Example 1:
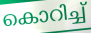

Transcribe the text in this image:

കൊറിച്ച്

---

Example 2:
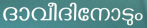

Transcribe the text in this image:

ദാവീദിനോടും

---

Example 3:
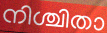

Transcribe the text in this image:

നിശ്ചിതാ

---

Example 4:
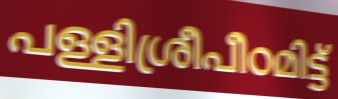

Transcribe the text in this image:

പള്ളിശ്രീപീഠമിട്ട്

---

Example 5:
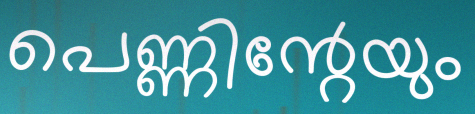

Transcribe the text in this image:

പെണ്ണിന്റേയും